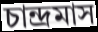
চান্দ্রমাস